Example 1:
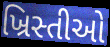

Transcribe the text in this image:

ખ્રિસ્તીઓ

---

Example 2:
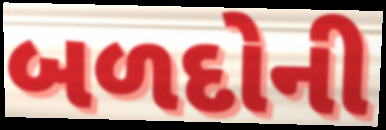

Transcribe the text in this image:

બળદોની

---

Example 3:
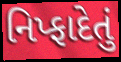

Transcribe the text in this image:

નિપ્ફાદેતું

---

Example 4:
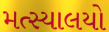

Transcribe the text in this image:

મત્સ્યાલયો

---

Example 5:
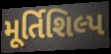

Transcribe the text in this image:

મૂર્તિશિલ્પ